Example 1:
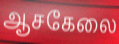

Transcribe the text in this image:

ஆசகேலை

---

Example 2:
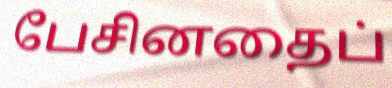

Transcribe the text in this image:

பேசினதைப்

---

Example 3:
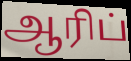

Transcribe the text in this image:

ஆரிப்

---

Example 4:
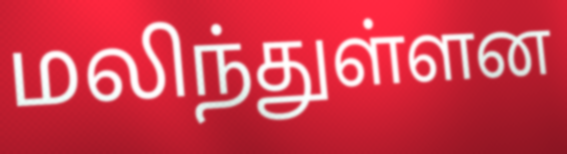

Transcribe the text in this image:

மலிந்துள்ளன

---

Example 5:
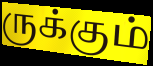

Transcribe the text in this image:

ருக்கும்